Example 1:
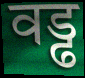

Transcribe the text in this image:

वड्ढ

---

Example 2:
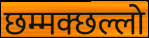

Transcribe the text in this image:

छम्मक्छल्लो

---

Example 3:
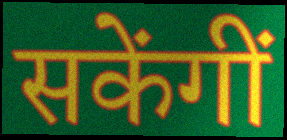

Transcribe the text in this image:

सकेंगीं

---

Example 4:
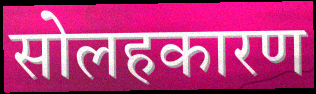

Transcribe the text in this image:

सोलहकारण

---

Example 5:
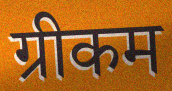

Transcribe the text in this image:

ग्रीकम